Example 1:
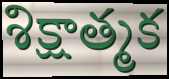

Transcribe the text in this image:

శిక్షాత్మక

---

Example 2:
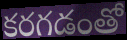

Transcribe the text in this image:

కరగడంతో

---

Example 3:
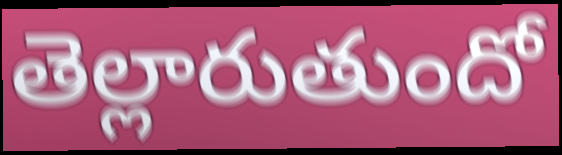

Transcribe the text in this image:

తెల్లారుతుందో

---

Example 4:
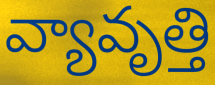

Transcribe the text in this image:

వ్యావృత్తి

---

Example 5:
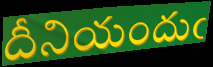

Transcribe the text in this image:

దీనియందుఁ